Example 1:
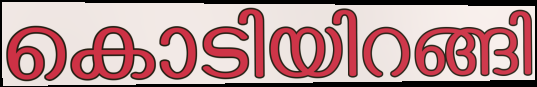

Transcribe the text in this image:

കൊടിയിറങ്ങി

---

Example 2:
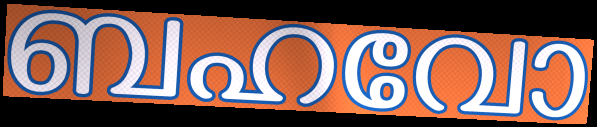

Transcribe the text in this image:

ബഹവോ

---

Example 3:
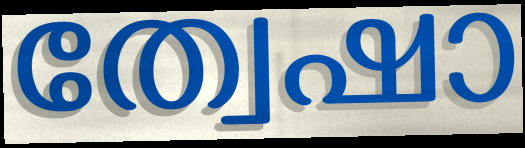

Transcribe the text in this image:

ത്വേഷാ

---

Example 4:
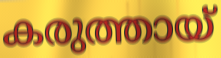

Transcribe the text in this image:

കരുത്തായ്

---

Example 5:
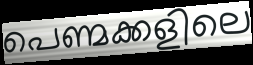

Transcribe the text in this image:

പെണ്മക്കളിലെ